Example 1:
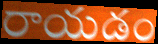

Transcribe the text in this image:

రాయడం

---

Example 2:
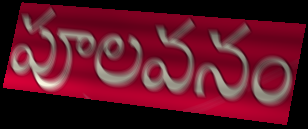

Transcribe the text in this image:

పూలవనం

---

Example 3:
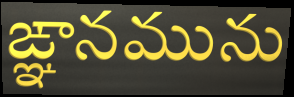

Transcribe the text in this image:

ఙ్ఞానమును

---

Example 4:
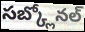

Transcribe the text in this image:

సబ్క్లోనల్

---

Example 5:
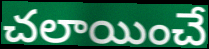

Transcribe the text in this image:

చలాయించే